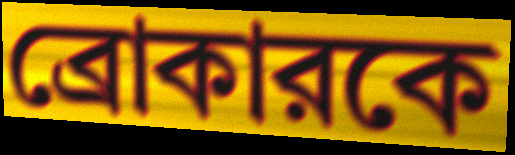
ব্রোকারকে